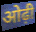
ओढ़ी